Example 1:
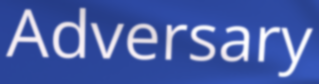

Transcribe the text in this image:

Adversary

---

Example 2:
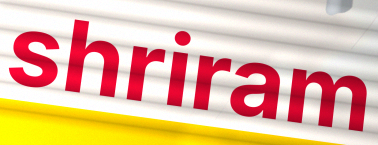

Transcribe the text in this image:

shriram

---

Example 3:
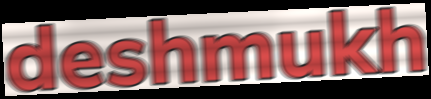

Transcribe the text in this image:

deshmukh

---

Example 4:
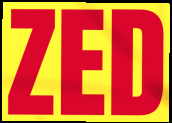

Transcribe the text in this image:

ZED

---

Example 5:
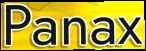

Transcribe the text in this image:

Panax